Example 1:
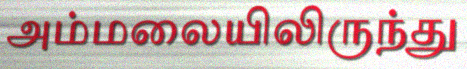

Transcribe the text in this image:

அம்மலையிலிருந்து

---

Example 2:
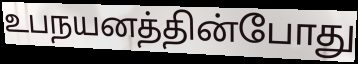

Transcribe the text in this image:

உபநயனத்தின்போது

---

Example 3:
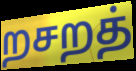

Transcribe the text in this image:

றசறத்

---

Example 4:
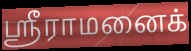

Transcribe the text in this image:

ஸ்ரீராமனைக்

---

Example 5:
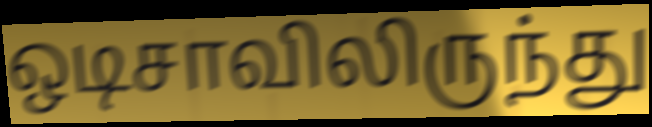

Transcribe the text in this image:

ஒடிசாவிலிருந்து